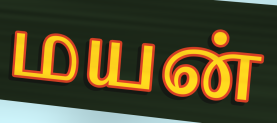
மயன்